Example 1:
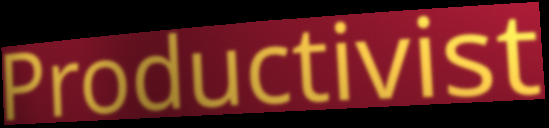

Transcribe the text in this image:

Productivist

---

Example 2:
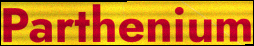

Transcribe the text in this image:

Parthenium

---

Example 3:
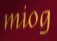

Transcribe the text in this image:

miog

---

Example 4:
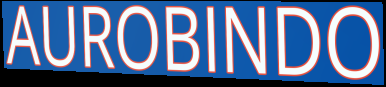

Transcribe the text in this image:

AUROBINDO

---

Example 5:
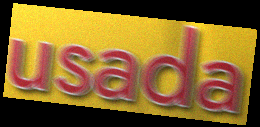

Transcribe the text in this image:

usada